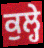
ਕੁਲ੍ਹੇ